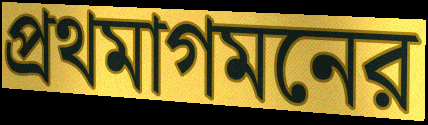
প্রথমাগমনের